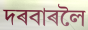
দৰবাৰলৈ